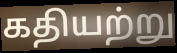
கதியற்று